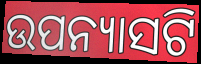
ଉପନ୍ୟାସଟି